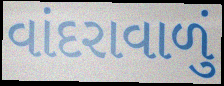
વાંદરાવાળું